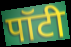
पॉटी